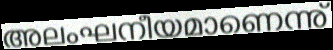
അലംഘനീയമാണെന്നു്